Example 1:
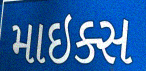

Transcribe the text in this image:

માઇક્સ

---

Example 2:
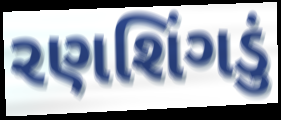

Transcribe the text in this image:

રણશિંગડું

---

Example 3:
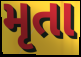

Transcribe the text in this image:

મૃતા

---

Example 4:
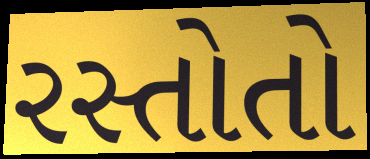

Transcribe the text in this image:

રસ્તોતો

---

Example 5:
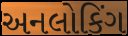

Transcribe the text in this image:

અનલોકિંગ